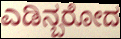
ಎಡಿನ್ಬರೋದ